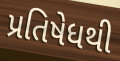
પ્રતિષેધથી